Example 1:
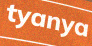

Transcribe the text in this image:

tyanya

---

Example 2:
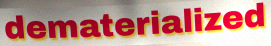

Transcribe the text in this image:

dematerialized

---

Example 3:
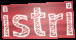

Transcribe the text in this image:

istri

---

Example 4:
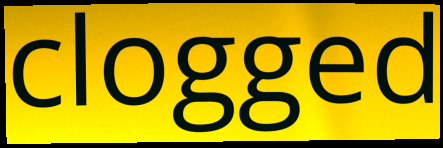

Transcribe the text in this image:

clogged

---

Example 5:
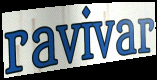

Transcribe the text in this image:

ravivar